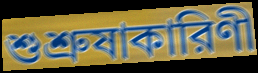
শুশ্রুষাকারিণী